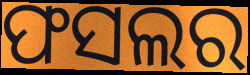
ଫସଲର